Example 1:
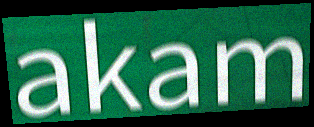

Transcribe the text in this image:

akam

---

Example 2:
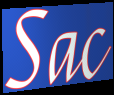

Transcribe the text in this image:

Sac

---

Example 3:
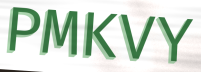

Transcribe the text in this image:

PMKVY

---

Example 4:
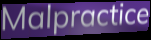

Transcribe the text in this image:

Malpractice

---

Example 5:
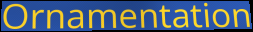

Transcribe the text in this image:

Ornamentation